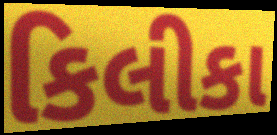
કિલીકા